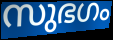
സുഭഗം